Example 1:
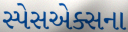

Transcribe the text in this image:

સ્પેસએક્સના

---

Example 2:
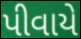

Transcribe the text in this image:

પીવાયે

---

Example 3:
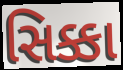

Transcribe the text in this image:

સિક્કા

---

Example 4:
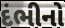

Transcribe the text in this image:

દંભીનો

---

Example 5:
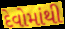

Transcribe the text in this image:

દેવોમાંથી